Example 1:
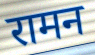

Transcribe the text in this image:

रामन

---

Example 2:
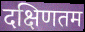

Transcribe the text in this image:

दक्षिणतम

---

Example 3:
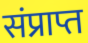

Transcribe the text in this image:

संप्राप्त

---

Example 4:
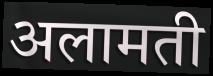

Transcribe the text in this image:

अलामती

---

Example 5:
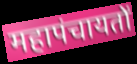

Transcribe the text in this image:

महापंचायतों